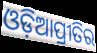
ଓଡ଼ିଆପ୍ରୀତିର